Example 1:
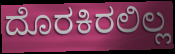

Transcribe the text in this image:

ದೊರಕಿರಲಿಲ್ಲ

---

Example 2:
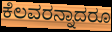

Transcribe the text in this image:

ಕೆಲವರನ್ನಾದರೂ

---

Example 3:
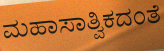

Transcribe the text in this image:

ಮಹಾಸಾತ್ವಿಕದಂತೆ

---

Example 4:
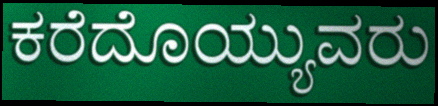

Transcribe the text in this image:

ಕರೆದೊಯ್ಯುವರು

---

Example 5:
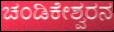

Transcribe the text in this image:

ಚಂಡಿಕೇಶ್ವರನ